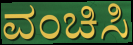
ವಂಚಿಸಿ